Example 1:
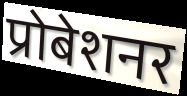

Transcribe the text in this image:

प्रोबेशनर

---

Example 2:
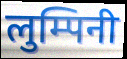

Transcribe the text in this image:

लुम्पिनी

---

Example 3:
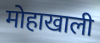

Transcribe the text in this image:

मोहाखाली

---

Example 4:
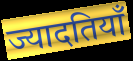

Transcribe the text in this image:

ज्यादतियाँ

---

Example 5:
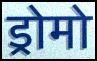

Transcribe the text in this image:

ड्रोमो